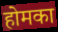
होमका